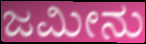
ಜಮೀನು